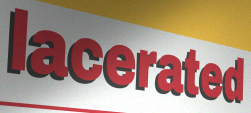
lacerated